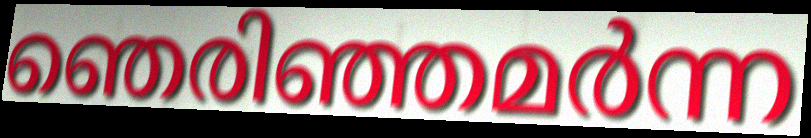
ഞെരിഞ്ഞമർന്ന